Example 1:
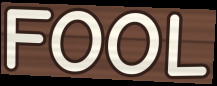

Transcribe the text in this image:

FOOL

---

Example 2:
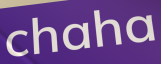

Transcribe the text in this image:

chaha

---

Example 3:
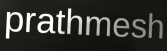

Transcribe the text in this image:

prathmesh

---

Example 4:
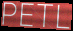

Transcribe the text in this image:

PETL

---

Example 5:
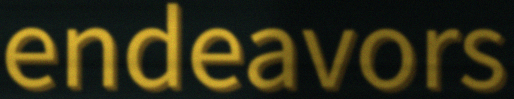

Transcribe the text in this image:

endeavors